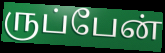
ருப்பேன்